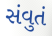
સંવુતં